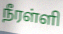
நீரள்ளி